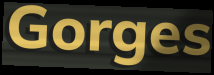
Gorges